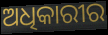
ଅଧିକାରୀର